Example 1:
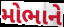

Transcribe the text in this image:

મોભાને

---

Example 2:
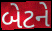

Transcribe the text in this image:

બેટને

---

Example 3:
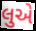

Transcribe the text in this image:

લુએ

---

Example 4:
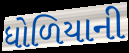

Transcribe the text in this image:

ધોળિયાની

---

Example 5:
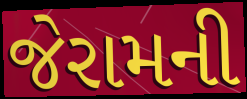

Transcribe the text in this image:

જેરામની